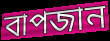
বাপজান